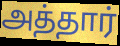
அத்தார்